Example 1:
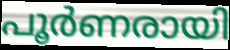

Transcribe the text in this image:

പൂർണരായി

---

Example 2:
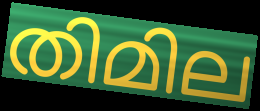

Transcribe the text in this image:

തിമില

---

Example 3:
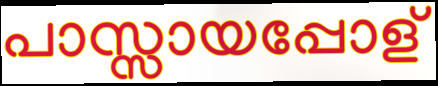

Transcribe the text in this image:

പാസ്സായപ്പോള്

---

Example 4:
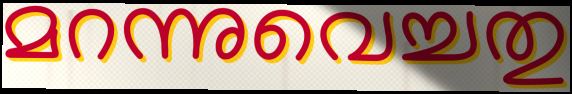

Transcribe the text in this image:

മറന്നുവെച്ചതു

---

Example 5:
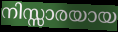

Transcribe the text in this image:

നിസ്സാരയായ